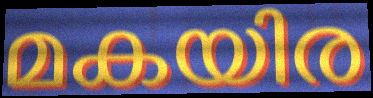
മകയിര